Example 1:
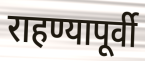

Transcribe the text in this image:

राहण्यापूर्वी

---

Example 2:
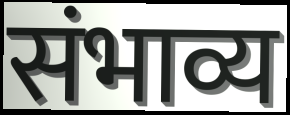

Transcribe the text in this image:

संभाव्य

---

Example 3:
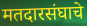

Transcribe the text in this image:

मतदारसंघाचे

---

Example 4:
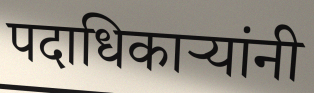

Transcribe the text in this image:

पदाधिकाऱ्यांनी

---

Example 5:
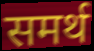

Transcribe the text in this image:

समर्थ